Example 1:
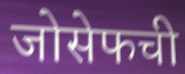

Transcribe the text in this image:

जोसेफची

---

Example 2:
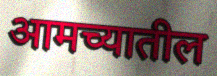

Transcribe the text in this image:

आमच्यातील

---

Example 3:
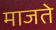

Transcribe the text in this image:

माजते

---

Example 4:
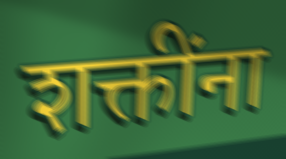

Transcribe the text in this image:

शक्तींना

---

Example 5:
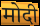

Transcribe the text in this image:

मोदी